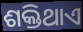
ଶକ୍ତିଥାଏ